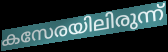
കസേരയിലിരുന്ന്